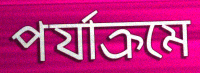
পর্যাক্রমে